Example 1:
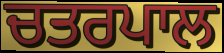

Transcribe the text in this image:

ਚਤਰਪਾਲ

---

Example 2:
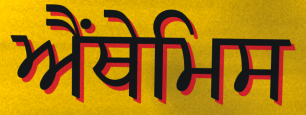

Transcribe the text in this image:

ਐਂਥੇਮਿਸ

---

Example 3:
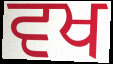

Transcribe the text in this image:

ਵਖ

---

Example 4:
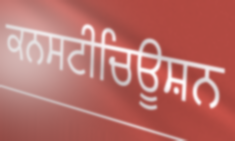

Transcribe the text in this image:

ਕਨਸਟੀਚਿਊਸ਼ਨ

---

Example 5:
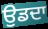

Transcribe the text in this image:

ਉਡਦਾ